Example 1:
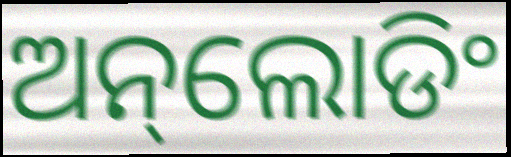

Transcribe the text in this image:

ଅନ୍‌ଲୋଡିଂ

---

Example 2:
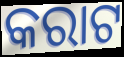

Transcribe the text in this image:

କରାଟ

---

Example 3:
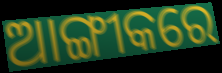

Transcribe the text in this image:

ଆଙ୍ଗୀକରେ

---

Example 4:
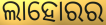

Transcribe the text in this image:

ଲାହୋରର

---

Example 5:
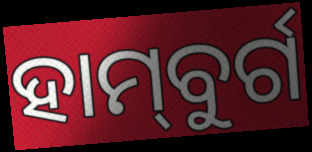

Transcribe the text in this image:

ହାମ୍‌ବୁର୍ଗ